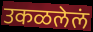
उकळलेलं